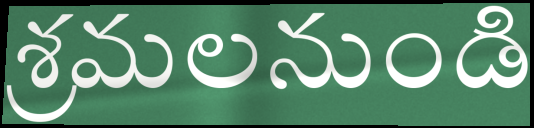
శ్రమలనుండి